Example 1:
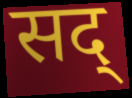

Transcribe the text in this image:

सद्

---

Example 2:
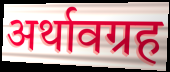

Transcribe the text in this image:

अर्थावग्रह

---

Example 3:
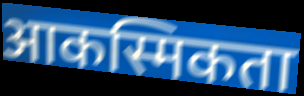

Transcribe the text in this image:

आकस्मिकता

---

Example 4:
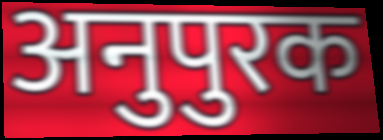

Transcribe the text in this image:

अनुपुरक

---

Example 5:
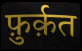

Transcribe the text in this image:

फ़ुर्क़त